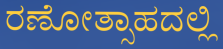
ರಣೋತ್ಸಾಹದಲ್ಲಿ